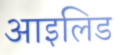
आइलिड